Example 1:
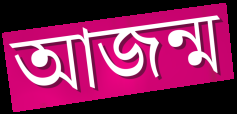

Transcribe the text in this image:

আজন্ম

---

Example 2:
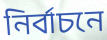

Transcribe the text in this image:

নিৰ্বাচনে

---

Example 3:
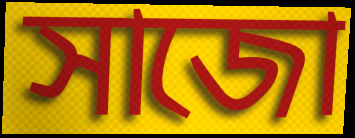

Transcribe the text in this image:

সাজো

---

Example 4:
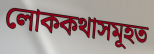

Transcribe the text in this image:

লোককথাসমূহত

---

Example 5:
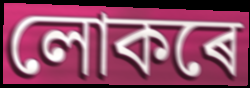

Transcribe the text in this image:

লোকৰে